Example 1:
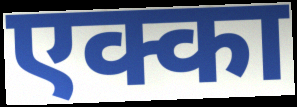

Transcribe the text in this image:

एक्का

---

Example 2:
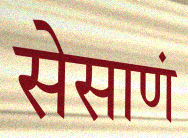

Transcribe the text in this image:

सेसाणं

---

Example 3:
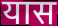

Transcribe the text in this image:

यास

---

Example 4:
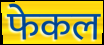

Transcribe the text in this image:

फेकल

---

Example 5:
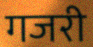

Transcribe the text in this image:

गजरी